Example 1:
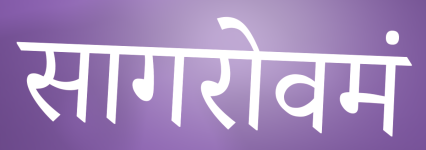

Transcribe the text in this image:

सागरोवमं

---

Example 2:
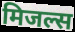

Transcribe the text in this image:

मिजल्स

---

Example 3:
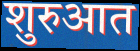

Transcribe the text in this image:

शुरुआत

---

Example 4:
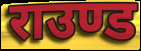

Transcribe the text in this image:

राउण्ड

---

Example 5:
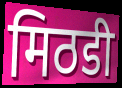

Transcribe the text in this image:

मिठडी